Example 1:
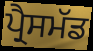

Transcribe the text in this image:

ਪ੍ਰੈਸਮੱਡ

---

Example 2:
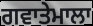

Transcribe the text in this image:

ਗਵਾਤੇਮਾਲਾ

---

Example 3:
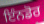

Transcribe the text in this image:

ਇੰਨਡੋਰ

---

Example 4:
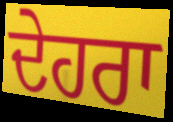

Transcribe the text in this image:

ਦੇਹਰਾ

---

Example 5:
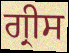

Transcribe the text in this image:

ਗ੍ਰੀਸ